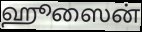
ஹூஸைன்